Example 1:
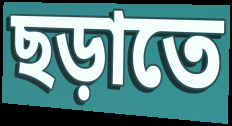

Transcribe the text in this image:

ছড়াতে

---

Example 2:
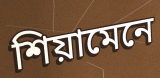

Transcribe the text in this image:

শিয়ামেনে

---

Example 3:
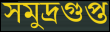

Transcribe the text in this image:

সমুদ্রগুপ্ত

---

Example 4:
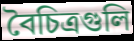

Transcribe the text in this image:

বৈচিত্রগুলি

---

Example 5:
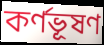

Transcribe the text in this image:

কর্ণভূষণ